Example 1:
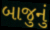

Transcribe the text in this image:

બાજુનું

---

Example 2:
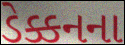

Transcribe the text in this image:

ડેક્કનના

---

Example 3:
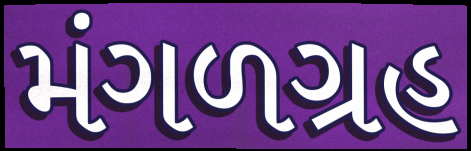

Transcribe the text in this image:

મંગળગ્રહ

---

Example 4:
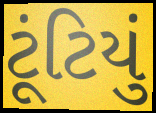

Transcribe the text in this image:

ટૂંટિયું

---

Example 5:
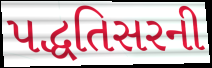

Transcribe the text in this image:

પદ્ધતિસરની